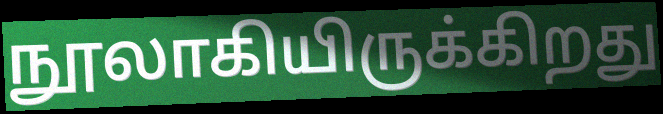
நூலாகியிருக்கிறது